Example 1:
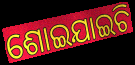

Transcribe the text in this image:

ଶୋଇଯାଇଚି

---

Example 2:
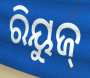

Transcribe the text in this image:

ରିୟୁଜ୍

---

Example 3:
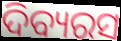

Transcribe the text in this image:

ଦିବ୍ୟରସ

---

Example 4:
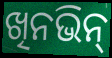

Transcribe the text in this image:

ଖିନଭିନ୍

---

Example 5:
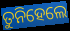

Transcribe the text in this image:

ତୁନିହେଲେ